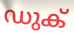
ഡുക്